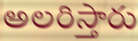
అలరిస్తారు